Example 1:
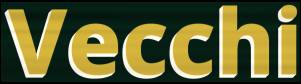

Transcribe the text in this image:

Vecchi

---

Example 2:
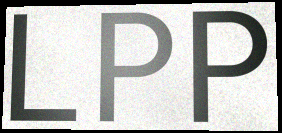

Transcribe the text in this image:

LPP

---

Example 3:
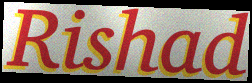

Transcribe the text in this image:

Rishad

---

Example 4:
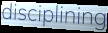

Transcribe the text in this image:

disciplining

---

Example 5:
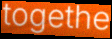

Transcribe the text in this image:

togethe